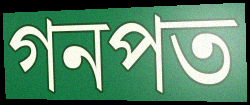
গনপত